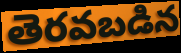
తెరవబడిన